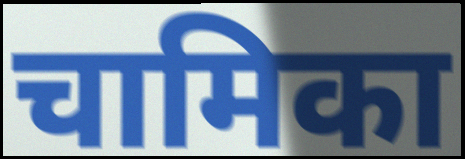
चामिका